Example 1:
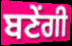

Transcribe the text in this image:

ਬਣੇਂਗੀ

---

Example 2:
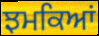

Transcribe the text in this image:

ਝਮਕਿਆਂ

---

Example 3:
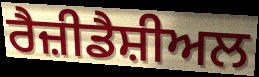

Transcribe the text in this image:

ਰੈਜ਼ੀਡੈਸ਼ੀਅਲ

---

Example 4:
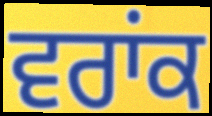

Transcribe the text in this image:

ਵਰਾਂਕ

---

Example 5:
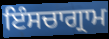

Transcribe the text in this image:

ਇੰਸਚਾਗ੍ਰਾਮ